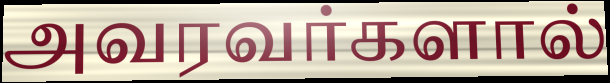
அவரவர்களால்